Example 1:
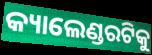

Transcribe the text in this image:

କ୍ୟାଲେଣ୍ଡରଟିକୁ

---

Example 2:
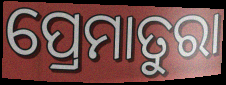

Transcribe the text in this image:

ପ୍ରେମାତୁରା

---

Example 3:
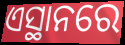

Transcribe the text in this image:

ଏସ୍ଥାନରେ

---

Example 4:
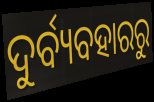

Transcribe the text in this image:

ଦୁର୍ବ୍ୟବହାରରୁ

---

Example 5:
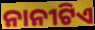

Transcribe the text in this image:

ନାନୀଟିଏ